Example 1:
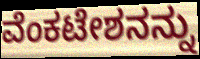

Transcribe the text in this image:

ವೆಂಕಟೇಶನನ್ನು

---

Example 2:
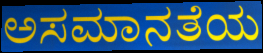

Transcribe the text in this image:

ಅಸಮಾನತೆಯ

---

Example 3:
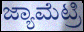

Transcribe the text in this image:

ಜ್ಯಾಮೆಟ್ರಿ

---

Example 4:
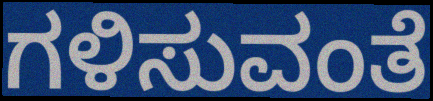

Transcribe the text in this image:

ಗಳಿಸುವಂತೆ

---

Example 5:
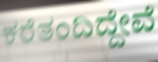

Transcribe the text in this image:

ಕರೆತಂದಿದ್ದೇವೆ